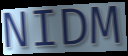
NIDM